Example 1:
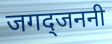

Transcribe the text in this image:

जगद्जननी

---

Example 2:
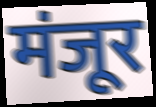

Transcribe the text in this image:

मंजूर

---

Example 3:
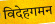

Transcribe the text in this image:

विदेहगमन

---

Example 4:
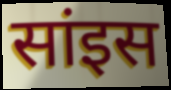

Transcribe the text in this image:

सांइस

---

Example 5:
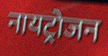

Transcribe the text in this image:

नायट्रोजन